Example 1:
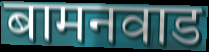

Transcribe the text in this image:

बामनवाड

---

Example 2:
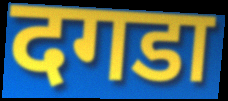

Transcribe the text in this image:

दगडा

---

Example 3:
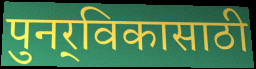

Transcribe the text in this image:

पुनर्विकासाठी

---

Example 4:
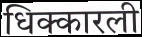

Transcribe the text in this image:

धिक्कारली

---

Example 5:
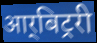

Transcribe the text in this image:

आर्बिट्ररी